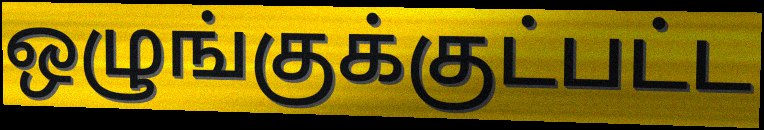
ஒழுங்குக்குட்பட்ட